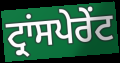
ਟ੍ਰਾਂਸਪੇਰੇਂਟ